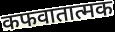
कफवातात्मक